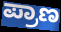
ಪ್ರಾಣ